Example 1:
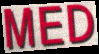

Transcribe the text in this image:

MED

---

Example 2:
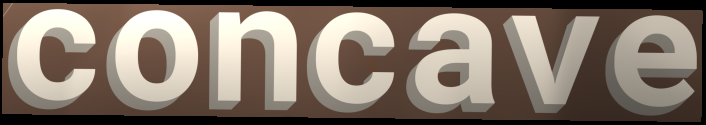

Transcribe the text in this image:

concave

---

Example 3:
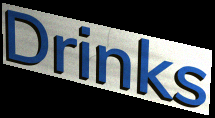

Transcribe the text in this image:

Drinks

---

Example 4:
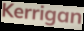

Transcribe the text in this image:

Kerrigan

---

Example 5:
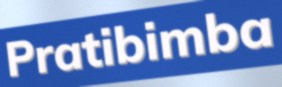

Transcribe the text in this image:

Pratibimba